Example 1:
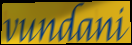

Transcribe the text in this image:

vundani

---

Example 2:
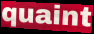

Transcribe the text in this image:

quaint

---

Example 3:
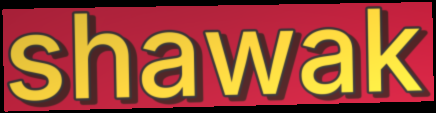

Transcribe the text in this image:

shawak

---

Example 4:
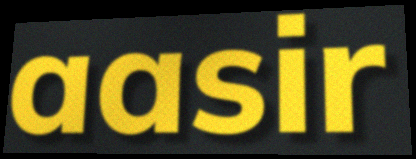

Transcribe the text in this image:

aasir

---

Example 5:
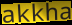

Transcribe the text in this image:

akkha